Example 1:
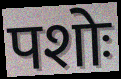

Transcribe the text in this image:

पशोः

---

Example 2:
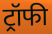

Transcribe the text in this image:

ट्रॉफी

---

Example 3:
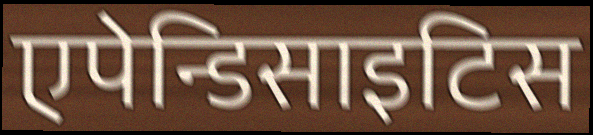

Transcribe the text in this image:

एपेन्डिसाइटिस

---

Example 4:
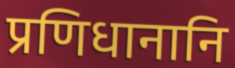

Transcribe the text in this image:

प्रणिधानानि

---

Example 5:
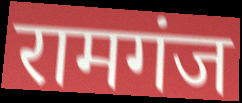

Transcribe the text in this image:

रामगंज